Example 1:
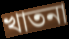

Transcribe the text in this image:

খাতনা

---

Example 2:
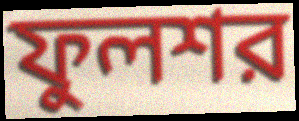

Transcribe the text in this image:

ফুলশর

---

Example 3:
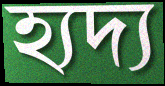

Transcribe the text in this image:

হ্যদ্য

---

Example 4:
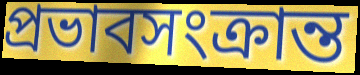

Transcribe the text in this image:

প্রভাবসংক্রান্ত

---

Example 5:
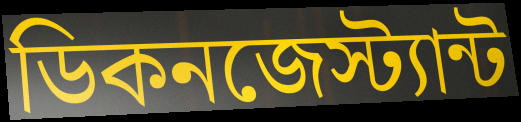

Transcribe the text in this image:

ডিকনজেস্ট্যান্ট